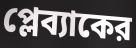
প্লেব্যাকের